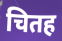
चितह